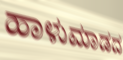
ಹಾಳುಮಾಡದ